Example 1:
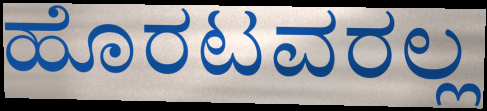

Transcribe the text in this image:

ಹೊರಟವರಲ್ಲ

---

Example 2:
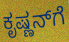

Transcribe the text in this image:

ಕೃಷ್ಣನ್‌ಗೆ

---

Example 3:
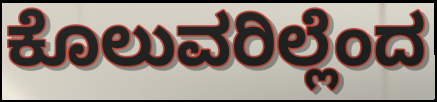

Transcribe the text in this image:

ಕೊಲುವರಿಲ್ಲೆಂದ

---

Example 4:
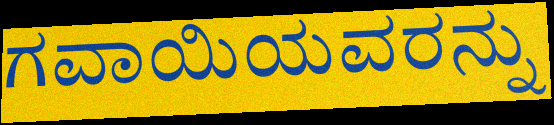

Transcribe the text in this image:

ಗವಾಯಿಯವರನ್ನು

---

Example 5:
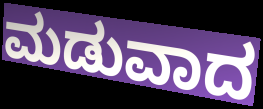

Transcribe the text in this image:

ಮಡುವಾದ